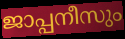
ജാപ്പനീസും